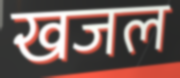
खजल